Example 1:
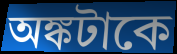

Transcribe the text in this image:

অঙ্কটাকে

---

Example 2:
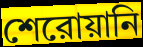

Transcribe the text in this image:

শেরোয়ানি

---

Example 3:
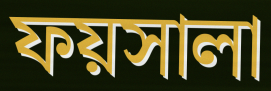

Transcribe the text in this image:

ফয়সালা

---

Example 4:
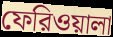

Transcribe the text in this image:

ফেরিওয়ালা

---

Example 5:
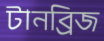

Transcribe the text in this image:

টানব্রিজ